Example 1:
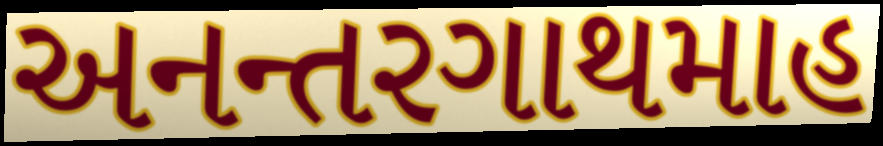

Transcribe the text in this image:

અનન્તરગાથમાહ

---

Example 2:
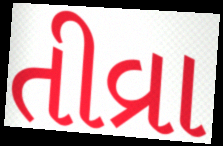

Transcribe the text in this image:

તીવ્રા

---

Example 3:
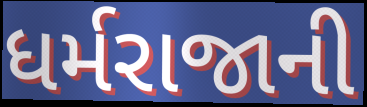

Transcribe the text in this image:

ધર્મરાજાની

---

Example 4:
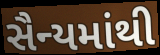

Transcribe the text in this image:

સૈન્યમાંથી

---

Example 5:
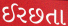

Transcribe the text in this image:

ઈરછતા